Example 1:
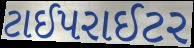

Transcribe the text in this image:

ટાઈપરાઈટર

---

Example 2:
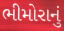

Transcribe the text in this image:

ભીમોરાનું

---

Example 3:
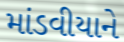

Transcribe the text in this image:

માંડવીયાને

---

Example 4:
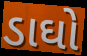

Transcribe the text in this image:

ડાઘો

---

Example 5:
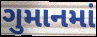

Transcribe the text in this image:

ગુમાનમાં